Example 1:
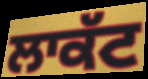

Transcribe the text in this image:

ਲਾਕੱਟ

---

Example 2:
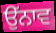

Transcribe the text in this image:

ਉੱਨਾਵ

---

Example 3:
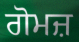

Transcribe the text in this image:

ਗੋਮਜ਼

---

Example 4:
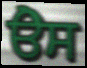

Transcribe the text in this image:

ੳੇਸ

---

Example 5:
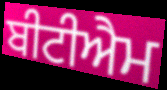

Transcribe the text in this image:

ਬੀਟੀਐਮ